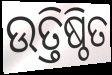
ଉତ୍ତିଷ୍ଠିତ